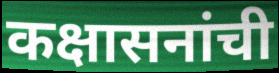
कक्षासनांची